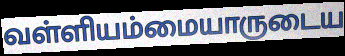
வள்ளியம்மையாருடைய